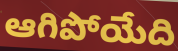
ఆగిపోయేది